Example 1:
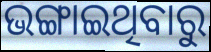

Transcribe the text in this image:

ଭଙ୍ଗାଇଥିବାରୁ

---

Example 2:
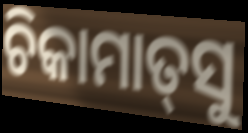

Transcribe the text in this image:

ଚିକାମାତ୍‌ସୁ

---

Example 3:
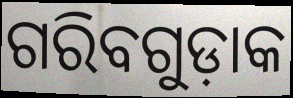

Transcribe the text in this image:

ଗରିବଗୁଡ଼ାକ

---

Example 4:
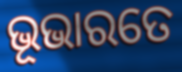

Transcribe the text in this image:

ଭୂଭାରତେ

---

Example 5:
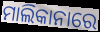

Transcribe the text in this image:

ମାଲିକାନାରେ